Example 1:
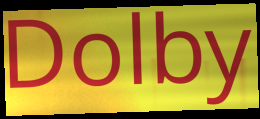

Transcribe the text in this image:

Dolby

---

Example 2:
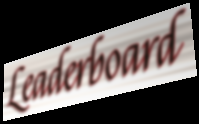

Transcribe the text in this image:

Leaderboard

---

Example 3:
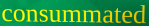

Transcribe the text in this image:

consummated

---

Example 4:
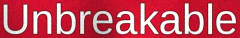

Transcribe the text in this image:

Unbreakable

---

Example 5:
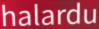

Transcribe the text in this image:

halardu